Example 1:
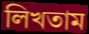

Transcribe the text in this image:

লিখতাম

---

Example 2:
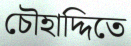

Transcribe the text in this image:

চৌহাদ্দিতে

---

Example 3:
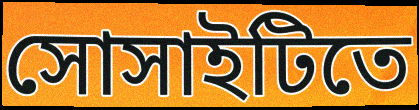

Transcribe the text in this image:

সোসাইটিতে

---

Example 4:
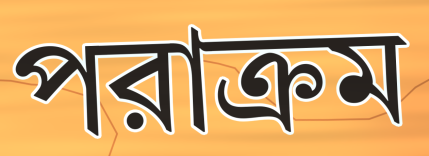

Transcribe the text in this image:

পরাক্রম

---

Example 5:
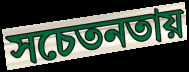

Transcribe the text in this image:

সচেতনতায়